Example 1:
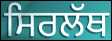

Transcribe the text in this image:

ਸਿਰਲੱਥ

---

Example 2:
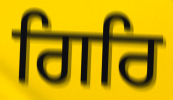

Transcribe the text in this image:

ਗਿਰਿ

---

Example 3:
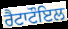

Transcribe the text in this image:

ਰੈਟਾਟੌਇਲ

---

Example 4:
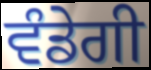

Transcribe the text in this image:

ਵੰਡੇਗੀ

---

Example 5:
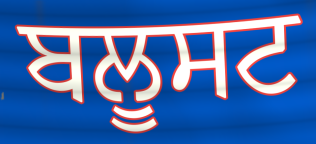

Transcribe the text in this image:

ਬਲੂਸਟ